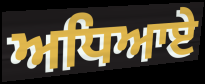
ਅਧਿਆਏ